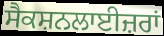
ਸੈਕਸ਼ਨਲਾਈਜ਼ਰਾਂ